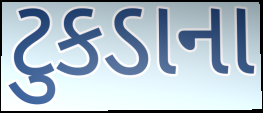
ટુકડાના